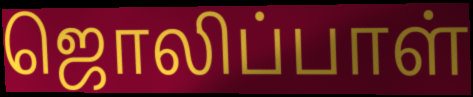
ஜொலிப்பாள்